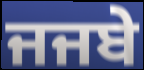
ਜਜਬੇ